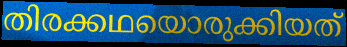
തിരക്കഥയൊരുക്കിയത്